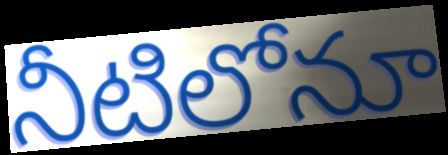
నీటిలోనూ